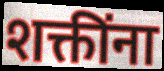
शक्तींना